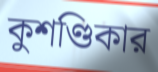
কুশণ্ডিকার